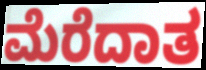
ಮೆರೆದಾತ